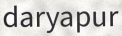
daryapur